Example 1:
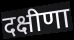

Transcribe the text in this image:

दक्षीणा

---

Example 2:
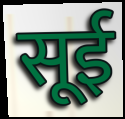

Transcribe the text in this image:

सूई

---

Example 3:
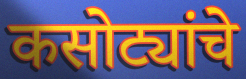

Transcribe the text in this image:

कसोट्यांचे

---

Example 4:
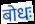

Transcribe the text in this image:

बोधः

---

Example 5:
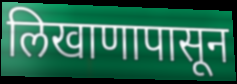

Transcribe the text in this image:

लिखाणापासून